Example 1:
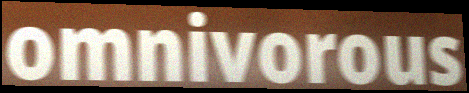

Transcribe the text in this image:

omnivorous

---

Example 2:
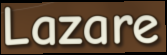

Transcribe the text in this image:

Lazare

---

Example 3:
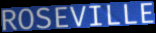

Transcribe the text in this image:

ROSEVILLE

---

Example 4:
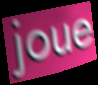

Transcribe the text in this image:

joue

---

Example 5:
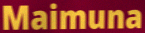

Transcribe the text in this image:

Maimuna